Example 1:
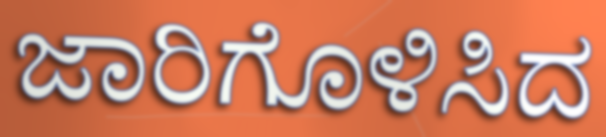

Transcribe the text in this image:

ಜಾರಿಗೊಳಿಸಿದ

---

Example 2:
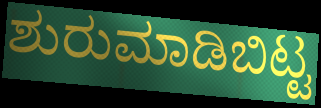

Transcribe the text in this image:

ಶುರುಮಾಡಿಬಿಟ್ಟ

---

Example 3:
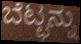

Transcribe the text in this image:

ಬೆಟ್ಟನ್ನು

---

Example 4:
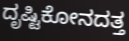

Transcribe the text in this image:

ದೃಷ್ಟಿಕೋನದತ್ತ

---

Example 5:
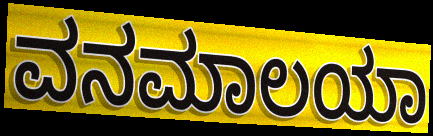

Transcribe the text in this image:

ವನಮಾಲಯಾ